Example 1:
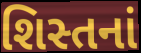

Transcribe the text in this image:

શિસ્તનાં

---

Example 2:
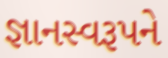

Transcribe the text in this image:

જ્ઞાનસ્વરૂપને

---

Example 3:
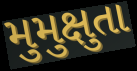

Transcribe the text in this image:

મુમુક્ષુતા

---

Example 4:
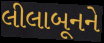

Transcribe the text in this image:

લીલાબૂનને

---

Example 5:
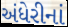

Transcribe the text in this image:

અંધેરીનાં